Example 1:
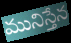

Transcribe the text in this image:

మునిస్తేన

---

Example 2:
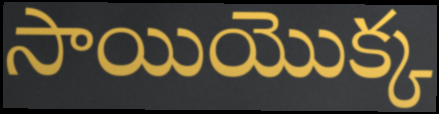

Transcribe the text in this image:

సాయియొక్క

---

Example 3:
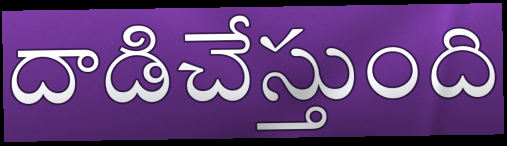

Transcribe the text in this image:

దాడిచేస్తుంది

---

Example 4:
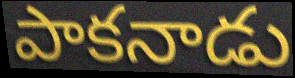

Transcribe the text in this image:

పాకనాడు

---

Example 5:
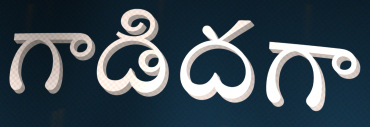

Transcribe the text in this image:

గాడిదగా